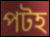
পটহ